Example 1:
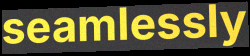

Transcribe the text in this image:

seamlessly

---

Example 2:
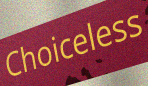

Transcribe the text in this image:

Choiceless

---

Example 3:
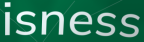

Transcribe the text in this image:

isness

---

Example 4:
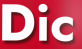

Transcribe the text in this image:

Dic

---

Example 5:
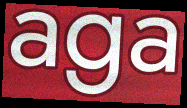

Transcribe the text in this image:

aga